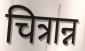
चित्रान्न